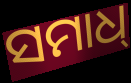
ସମାଧ୍